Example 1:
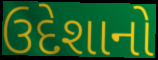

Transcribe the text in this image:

ઉદેશાનો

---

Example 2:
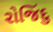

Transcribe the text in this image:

રોજિંદુ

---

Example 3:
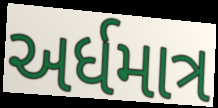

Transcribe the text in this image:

અર્ધમાત્ર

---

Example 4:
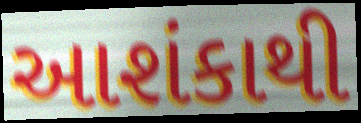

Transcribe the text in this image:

આશંકાથી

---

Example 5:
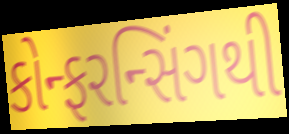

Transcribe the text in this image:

કોન્ફરન્સિંગથી